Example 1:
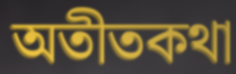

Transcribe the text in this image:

অতীতকথা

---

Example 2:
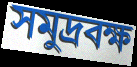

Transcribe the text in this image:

সমুদ্রবক্ষ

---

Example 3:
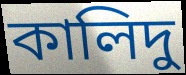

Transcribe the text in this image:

কালিদু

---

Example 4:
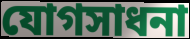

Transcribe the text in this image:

যোগসাধনা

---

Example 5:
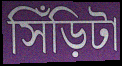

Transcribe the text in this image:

সিঁড়িটা